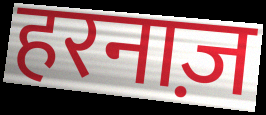
हरनाज़